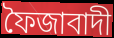
ফৈজাবাদী